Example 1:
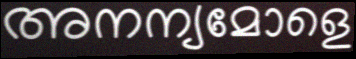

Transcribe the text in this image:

അനന്യമോളെ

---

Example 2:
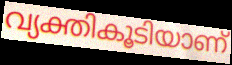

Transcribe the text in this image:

വ്യക്തികൂടിയാണ്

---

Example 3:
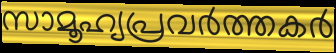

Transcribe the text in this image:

സാമൂഹ്യപ്രവർത്തകർ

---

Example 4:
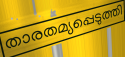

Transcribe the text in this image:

താരതമ്യപ്പെടുത്തി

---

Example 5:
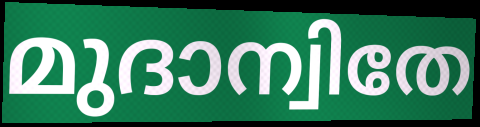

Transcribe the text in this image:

മുദാന്വിതേ